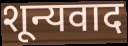
शून्यवाद